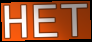
HET